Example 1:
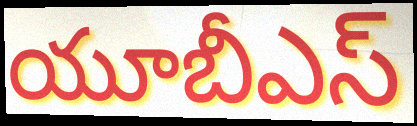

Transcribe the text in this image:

యూబీఎస్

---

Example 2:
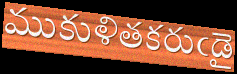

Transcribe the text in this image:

ముకుళితకరుఁడై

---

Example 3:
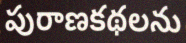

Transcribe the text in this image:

పురాణకథలను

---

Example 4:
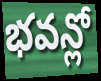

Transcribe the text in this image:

భవన్లో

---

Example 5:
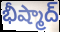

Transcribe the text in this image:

భీష్మాద్